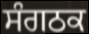
ਸੰਗਠਕ